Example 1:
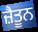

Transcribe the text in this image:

ਜ਼ੈਤੂਨ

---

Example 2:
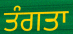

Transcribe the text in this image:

ਤੰਗਤਾ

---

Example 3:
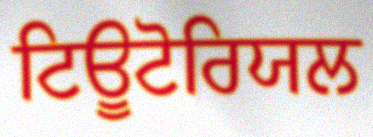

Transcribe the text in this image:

ਟਿਊਟੋਰਿਯਲ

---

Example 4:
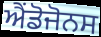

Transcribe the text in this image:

ਐਂਡੋਜੋਨਸ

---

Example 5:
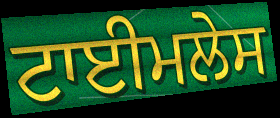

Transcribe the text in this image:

ਟਾਈਮਲੇਸ